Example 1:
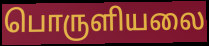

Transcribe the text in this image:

பொருளியலை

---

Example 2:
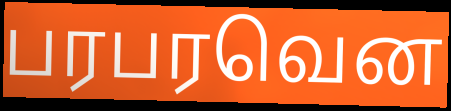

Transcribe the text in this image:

பரபரவென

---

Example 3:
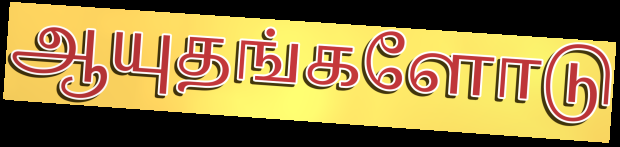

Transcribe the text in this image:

ஆயுதங்களோடு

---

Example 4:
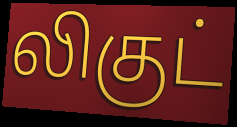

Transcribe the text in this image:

லிகுட்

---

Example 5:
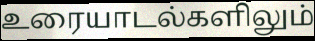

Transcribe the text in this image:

உரையாடல்களிலும்